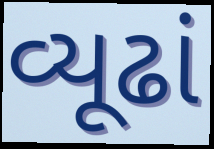
વ્યૂઢાં